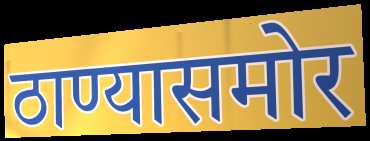
ठाण्यासमोर